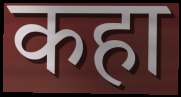
कहा